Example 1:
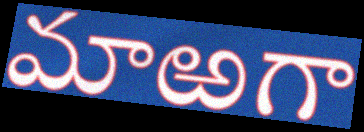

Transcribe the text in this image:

మాఱగా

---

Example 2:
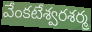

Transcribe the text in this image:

వేంకటేశ్వరశర్మ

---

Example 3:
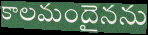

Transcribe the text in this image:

కాలమందైనను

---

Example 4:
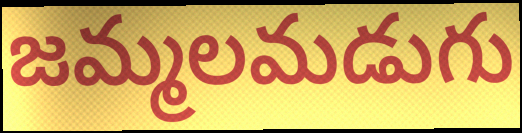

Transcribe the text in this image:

జమ్మలమడుగు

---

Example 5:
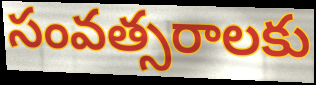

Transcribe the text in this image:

సంవత్సరాలకు